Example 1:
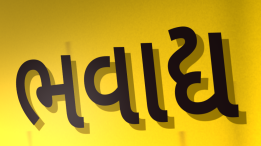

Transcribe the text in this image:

ભવાદ્ય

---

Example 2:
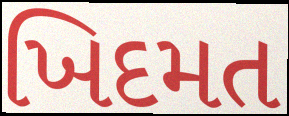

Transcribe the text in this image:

ખિદમત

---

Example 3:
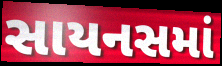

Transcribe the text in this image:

સાયનસમાં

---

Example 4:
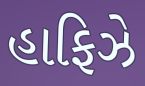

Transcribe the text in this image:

હાફિઝે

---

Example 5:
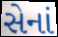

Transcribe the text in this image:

સેનાં